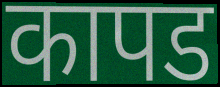
कापड